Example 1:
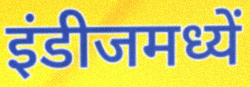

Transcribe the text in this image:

इंडीजमध्यें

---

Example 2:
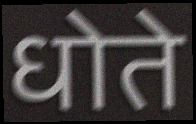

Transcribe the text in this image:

धोते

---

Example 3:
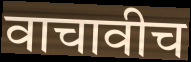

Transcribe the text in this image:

वाचावीच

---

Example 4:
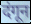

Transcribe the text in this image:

दंगून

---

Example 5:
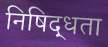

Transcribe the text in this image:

निषिद्धता